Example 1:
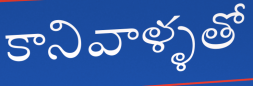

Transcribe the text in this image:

కానివాళ్ళతో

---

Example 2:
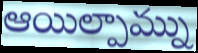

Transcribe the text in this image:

ఆయిల్పామ్ను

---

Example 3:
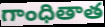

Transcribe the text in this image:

గాంధితాత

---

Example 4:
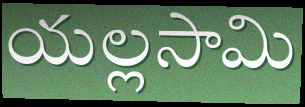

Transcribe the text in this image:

యల్లసామి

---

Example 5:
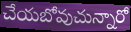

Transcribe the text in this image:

చేయబోవుచున్నారో